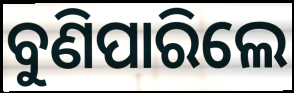
ବୁଣିପାରିଲେ